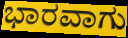
ಭಾರವಾಗು